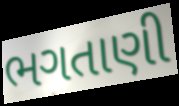
ભગતાણી